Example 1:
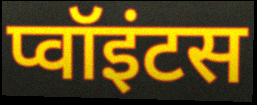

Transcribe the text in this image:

प्वॉइंटस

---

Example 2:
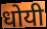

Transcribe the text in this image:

धोयी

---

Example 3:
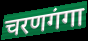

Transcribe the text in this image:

चरणगंगा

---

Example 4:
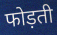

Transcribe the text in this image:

फोड़ती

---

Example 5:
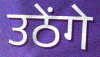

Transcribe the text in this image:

उठेंगे